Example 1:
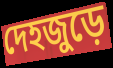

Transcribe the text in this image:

দেহজুড়ে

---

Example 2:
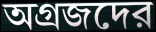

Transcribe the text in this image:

অগ্রজদের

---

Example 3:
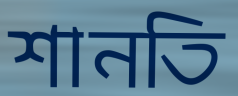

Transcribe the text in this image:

শানতি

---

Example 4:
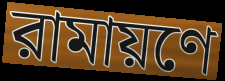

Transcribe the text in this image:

রামায়ণে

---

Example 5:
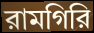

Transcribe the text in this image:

রামগিরি